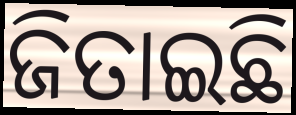
ଜିତାଇଛି